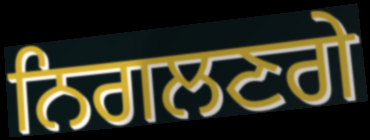
ਨਿਗਲਣਗੇ